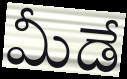
మీడే